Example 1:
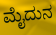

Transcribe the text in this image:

ಮೈದುನ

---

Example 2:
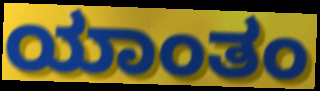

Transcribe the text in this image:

ಯಾಂತಂ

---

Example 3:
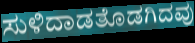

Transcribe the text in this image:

ಸುಳಿದಾಡತೊಡಗಿದವು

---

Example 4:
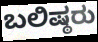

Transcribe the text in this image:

ಬಲಿಷ್ಠರು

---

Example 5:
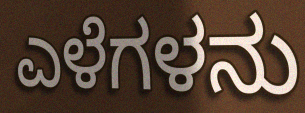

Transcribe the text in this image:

ಎಳೆಗಳನು